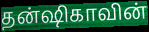
தன்ஷிகாவின்